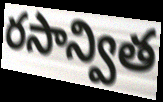
రసాన్విత